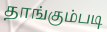
தாங்கும்படி